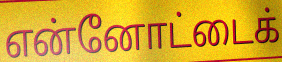
என்னோட்டைக்